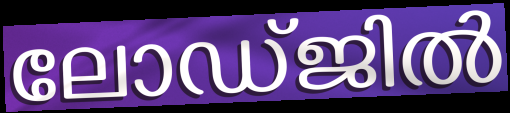
ലോഡ്ജിൽ